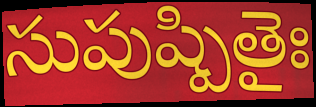
సుపుష్పితైః